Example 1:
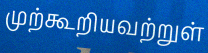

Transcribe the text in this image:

முற்கூறியவற்றுள்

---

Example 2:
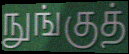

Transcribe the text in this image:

நுங்குத்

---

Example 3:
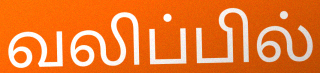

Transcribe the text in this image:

வலிப்பில்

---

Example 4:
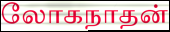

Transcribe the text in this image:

லோகநாதன்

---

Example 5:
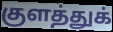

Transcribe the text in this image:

குளத்துக்